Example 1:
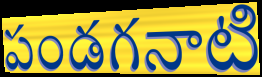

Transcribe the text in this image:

పండగనాటి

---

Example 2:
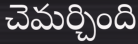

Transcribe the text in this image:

చెమర్చింది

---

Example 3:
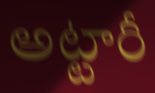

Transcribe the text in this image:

అట్టారీ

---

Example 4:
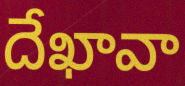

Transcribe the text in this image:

దేఖావా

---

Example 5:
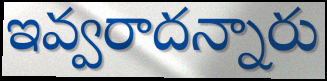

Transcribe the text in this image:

ఇవ్వరాదన్నారు